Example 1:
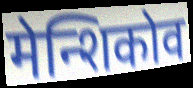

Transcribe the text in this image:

मेन्शिकोव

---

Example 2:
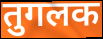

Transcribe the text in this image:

तुगलक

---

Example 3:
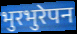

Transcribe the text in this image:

भुरभुरेपन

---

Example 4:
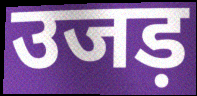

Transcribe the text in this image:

उजड़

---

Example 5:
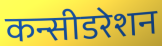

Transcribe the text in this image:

कन्सीडरेशन